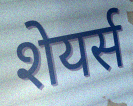
शेयर्स